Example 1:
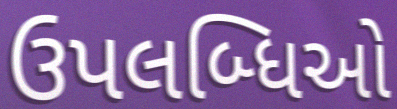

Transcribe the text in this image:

ઉપલબ્ધિઓ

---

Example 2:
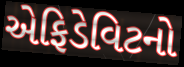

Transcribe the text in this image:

એફિડેવિટનો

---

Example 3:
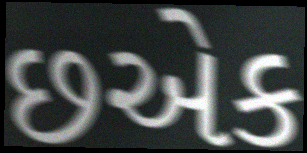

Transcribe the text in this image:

છએક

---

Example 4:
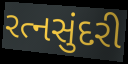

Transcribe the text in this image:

રત્નસુંદરી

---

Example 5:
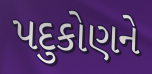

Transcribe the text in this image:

પદુકોણને